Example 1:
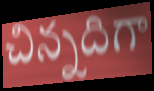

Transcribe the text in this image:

చిన్నదిగా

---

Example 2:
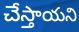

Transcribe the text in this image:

చేస్తాయని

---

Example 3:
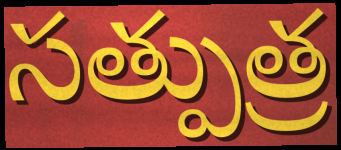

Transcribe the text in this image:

సత్పుత్ర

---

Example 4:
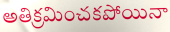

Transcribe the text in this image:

అతిక్రమించకపోయినా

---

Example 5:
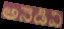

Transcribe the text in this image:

అనెడివి